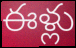
ఈళ్లు